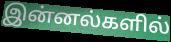
இன்னல்களில்